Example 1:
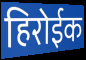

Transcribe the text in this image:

हिरोईक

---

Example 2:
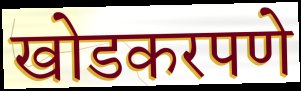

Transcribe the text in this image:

खोडकरपणे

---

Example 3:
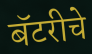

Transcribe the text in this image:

बॅटरीचे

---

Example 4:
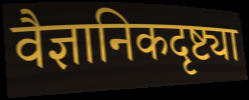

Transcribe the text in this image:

वैज्ञानिकदृष्ट्या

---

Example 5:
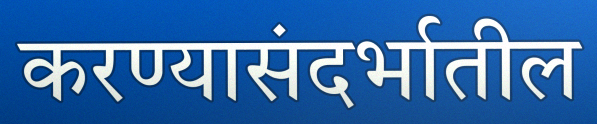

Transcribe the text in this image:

करण्यासंदर्भातील